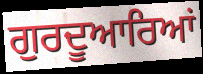
ਗੁਰਦੂਆਰਿਆਂ